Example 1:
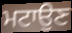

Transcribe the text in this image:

ਮਟਾਉਣ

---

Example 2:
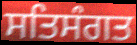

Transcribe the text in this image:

ਸਤਿਸੰਗਤ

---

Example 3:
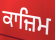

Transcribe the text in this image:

ਕਾਜ਼ਿਮ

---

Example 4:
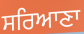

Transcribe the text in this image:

ਸਰਿਆਣਾ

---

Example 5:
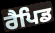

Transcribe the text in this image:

ਰੈਪਿਡ